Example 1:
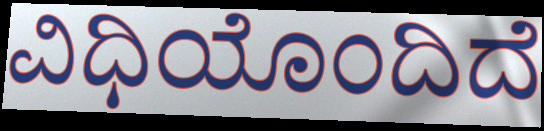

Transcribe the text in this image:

ವಿಧಿಯೊಂದಿದೆ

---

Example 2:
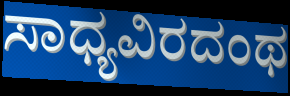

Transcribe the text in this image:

ಸಾಧ್ಯವಿರದಂಥ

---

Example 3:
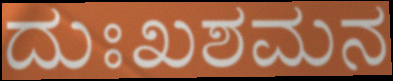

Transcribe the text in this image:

ದುಃಖಶಮನ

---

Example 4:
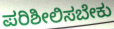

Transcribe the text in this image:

ಪರಿಶೀಲಿಸಬೇಕು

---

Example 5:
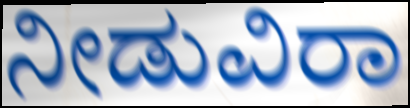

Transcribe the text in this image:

ನೀಡುವಿರಾ